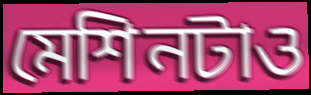
মেশিনটাও